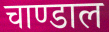
चाण्डाल